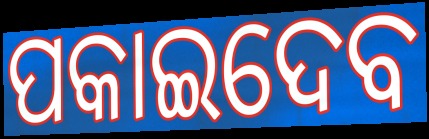
ପକାଇଦେବ